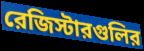
রেজিস্টারগুলির